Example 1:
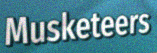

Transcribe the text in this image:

Musketeers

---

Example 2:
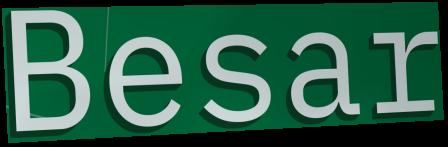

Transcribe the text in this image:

Besar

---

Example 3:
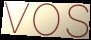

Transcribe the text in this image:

vos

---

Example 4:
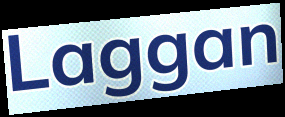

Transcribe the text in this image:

Laggan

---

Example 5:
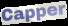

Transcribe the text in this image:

Capper